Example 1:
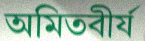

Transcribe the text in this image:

অমিতবীর্য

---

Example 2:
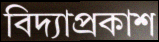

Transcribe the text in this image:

বিদ্যাপ্রকাশ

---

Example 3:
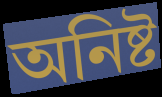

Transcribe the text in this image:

অনিষ্ট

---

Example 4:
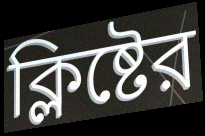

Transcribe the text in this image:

ক্লিষ্টের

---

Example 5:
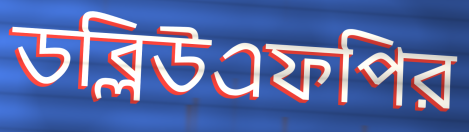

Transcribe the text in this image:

ডব্লিউএফপির